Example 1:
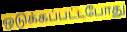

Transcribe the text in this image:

ஒடுக்கப்பட்டபோது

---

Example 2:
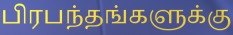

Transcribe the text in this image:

பிரபந்தங்களுக்கு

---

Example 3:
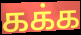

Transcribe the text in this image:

கக்க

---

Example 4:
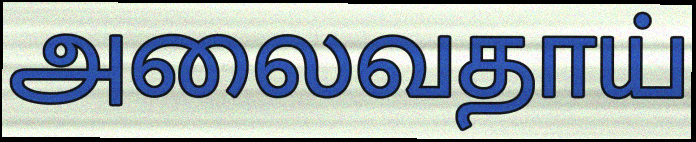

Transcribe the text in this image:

அலைவதாய்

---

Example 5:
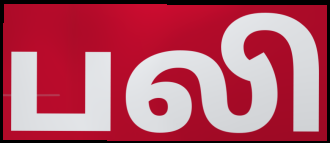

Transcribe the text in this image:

பலி